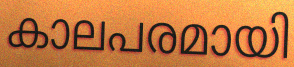
കാലപരമായി